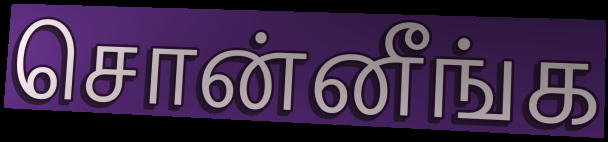
சொன்னீங்க